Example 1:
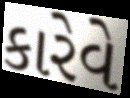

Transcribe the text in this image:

કારેવે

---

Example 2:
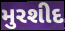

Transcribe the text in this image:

મુરશીદ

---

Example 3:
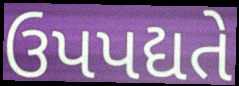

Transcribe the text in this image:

ઉપપદ્યતે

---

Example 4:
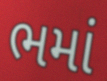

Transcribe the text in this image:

ભમાં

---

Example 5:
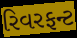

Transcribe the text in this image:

રિવરફન્ટ